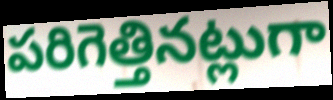
పరిగెత్తినట్లుగా